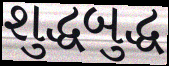
શુદ્ધબુદ્ધ